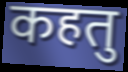
कहतु